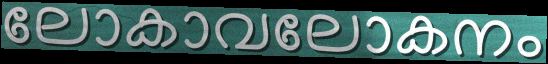
ലോകാവലോകനം